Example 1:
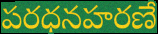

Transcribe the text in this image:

పరధనహరణే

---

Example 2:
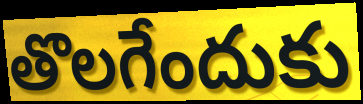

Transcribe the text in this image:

తొలగేందుకు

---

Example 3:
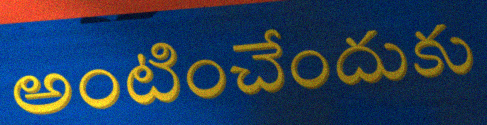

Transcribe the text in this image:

అంటించేందుకు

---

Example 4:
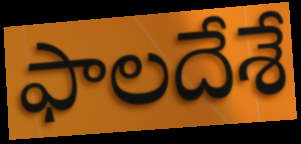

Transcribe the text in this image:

ఫాలదేశే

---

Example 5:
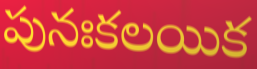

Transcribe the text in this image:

పునఃకలయిక